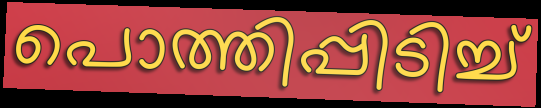
പൊത്തിപ്പിടിച്ച്